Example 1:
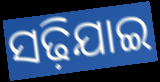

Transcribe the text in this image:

ସଢ଼ିଯାଇ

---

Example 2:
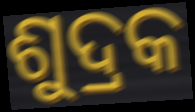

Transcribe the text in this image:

ଶୁଦ୍ରକ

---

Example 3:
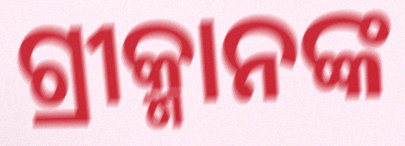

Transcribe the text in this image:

ଗ୍ରୀକ୍ମାନଙ୍କ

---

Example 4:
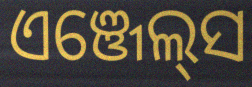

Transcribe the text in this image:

ଏଞ୍ଜେଲ୍‍ସ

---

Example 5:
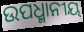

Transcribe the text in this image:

ଉପଧ୍ମାନୀୟ